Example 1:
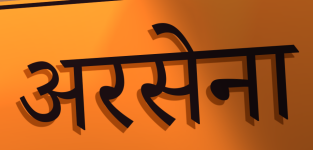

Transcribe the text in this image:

अरसेना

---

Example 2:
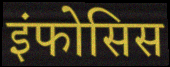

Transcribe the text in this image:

इंफोसिस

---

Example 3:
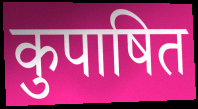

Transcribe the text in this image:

कुपाषित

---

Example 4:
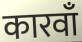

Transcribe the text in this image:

कारवाँ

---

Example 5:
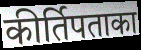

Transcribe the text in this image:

कीर्तिपताका